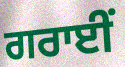
ਗਰਾਈਂ